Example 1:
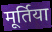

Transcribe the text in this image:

मूर्तिया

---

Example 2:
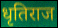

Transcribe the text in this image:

धृतिराज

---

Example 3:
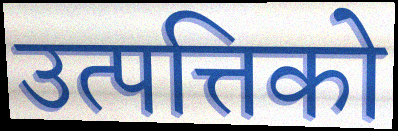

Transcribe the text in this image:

उत्पत्तिको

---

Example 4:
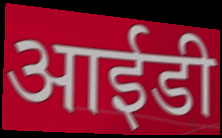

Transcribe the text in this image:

आईडी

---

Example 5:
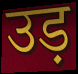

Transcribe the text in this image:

उड़